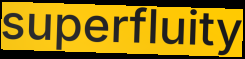
superfluity